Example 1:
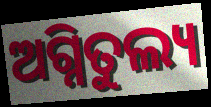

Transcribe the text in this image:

ଅଗ୍ନିତୁଲ୍ୟ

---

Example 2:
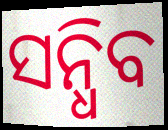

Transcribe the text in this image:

ସନ୍ଧିବ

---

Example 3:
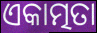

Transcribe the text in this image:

ଏକାତ୍ମତା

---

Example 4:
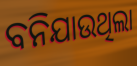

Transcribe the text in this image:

ବନିଯାଉଥିଲା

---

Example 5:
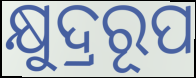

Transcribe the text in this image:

କ୍ଷୁଦ୍ରରୂପ